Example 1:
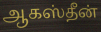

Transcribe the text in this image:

ஆகஸ்தீன்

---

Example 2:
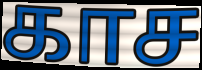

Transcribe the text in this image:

காச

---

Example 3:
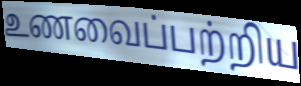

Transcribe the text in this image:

உணவைப்பற்றிய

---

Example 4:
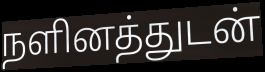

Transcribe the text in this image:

நளினத்துடன்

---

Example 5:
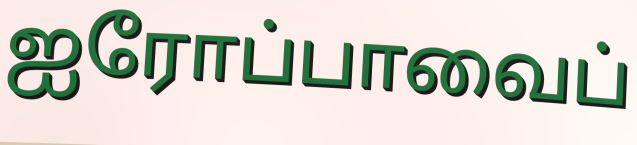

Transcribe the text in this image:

ஐரோப்பாவைப்